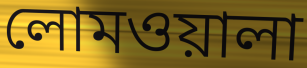
লোমওয়ালা